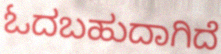
ಓದಬಹುದಾಗಿದೆ